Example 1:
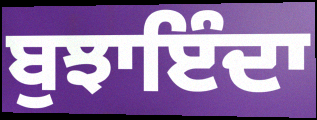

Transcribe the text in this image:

ਬੁਝਾਇੰਦਾ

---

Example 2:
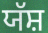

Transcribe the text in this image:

ਯੱਸ਼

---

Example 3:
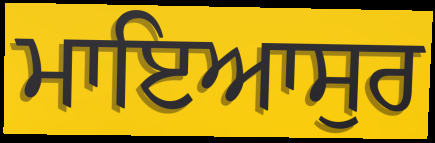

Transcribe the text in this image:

ਮਾਇਆਸੁਰ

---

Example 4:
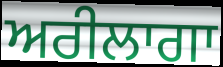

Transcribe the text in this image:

ਅਰੀਲਾਗਾ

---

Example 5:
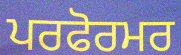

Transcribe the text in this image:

ਪਰਫੋਰਮਰ